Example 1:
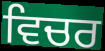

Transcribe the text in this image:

ਵਿਚਰ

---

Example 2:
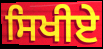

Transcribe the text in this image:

ਸਿਖੀਏ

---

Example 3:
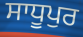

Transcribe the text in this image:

ਸਾਧੂਪੁਰ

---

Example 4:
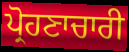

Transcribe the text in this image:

ਪ੍ਰੋਹਣਾਚਾਰੀ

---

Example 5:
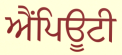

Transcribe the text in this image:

ਐਂਪਿਊਟੀ